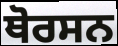
ਥੋਰਸਨ